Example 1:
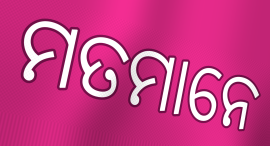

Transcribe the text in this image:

ମତମାନେ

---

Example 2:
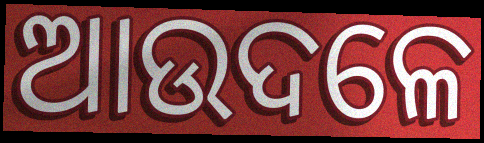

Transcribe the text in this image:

ଆଉଦଳେ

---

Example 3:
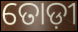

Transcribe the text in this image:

ତୋଡ଼ୀ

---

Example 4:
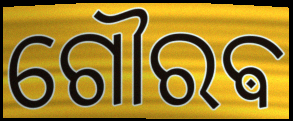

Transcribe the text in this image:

ଗୌରଵ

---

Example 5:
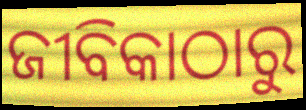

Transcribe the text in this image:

ଜୀବିକାଠାରୁ